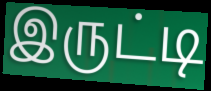
இருட்டி